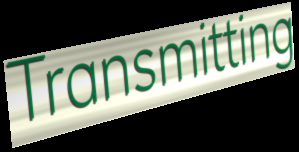
Transmitting